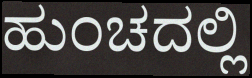
ಹುಂಚದಲ್ಲಿ